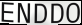
ENDDO